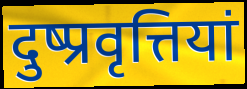
दुष्प्रवृत्तियां